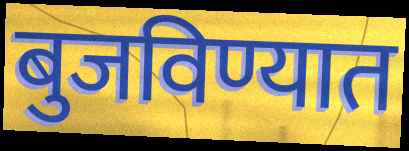
बुजविण्यात